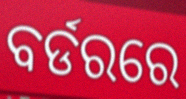
ବର୍ଡରରେ